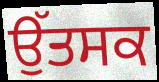
ਉੱਤਸਕ